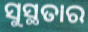
ସୁସ୍ଥତାର